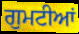
ਗੁਮਟੀਆਂ